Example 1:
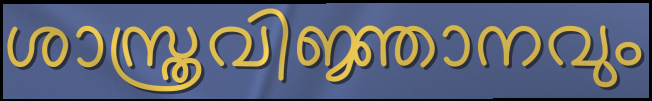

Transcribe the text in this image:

ശാസ്ത്രവിജ്ഞാനവും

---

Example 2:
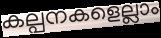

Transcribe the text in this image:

കല്പനകളെല്ലാം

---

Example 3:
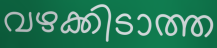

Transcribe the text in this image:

വഴക്കിടാത്ത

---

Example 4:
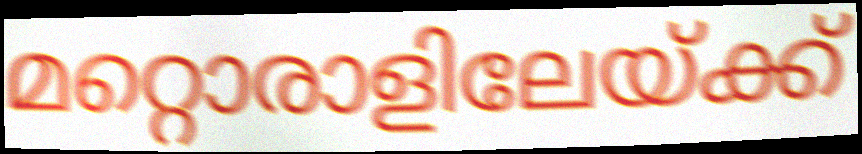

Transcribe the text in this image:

മറ്റൊരാളിലേയ്ക്ക്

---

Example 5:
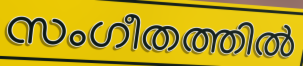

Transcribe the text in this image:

സംഗീതത്തിൽ